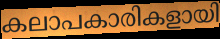
കലാപകാരികളായി